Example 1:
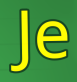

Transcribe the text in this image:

Je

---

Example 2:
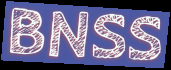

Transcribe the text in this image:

BNSS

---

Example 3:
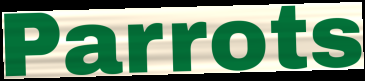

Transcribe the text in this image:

Parrots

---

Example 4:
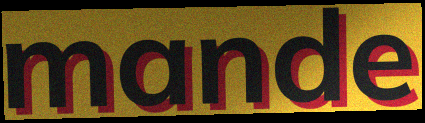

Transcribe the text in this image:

mande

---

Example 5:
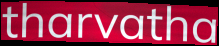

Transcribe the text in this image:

tharvatha